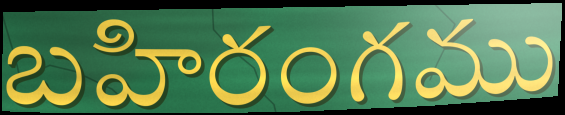
బహిరంగము